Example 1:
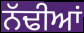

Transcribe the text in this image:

ਨੱਢੀਆਂ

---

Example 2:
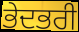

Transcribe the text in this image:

ਭੇਦਭਰੀ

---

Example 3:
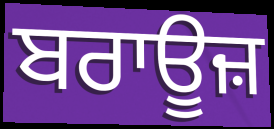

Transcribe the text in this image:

ਬਰਾਊਜ਼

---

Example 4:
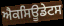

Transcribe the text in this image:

ਐਕਸਿਊਡੇਟਸ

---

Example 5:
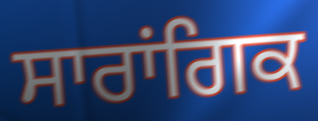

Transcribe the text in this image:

ਸਾਰਾਂਗਿਕ